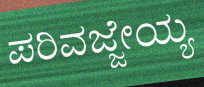
ಪರಿವಜ್ಜೇಯ್ಯ